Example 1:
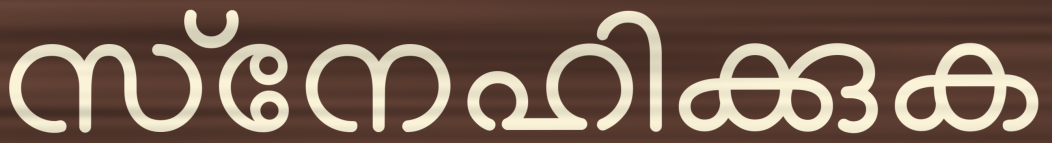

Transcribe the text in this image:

സ്‌നേഹിക്കുക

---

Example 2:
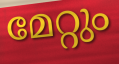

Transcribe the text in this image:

മേറ്റും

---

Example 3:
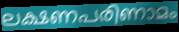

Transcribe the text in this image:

ലക്ഷണപരിണാമം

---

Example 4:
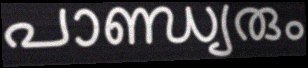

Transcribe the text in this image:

പാണ്ഡ്യരും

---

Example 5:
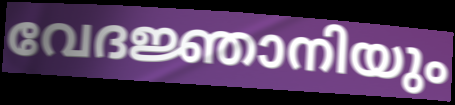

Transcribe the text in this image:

വേദജ്ഞാനിയും